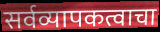
सर्वव्यापकत्वाचा